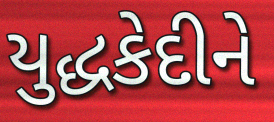
યુદ્ધકેદીને